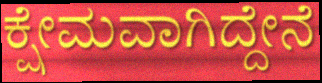
ಕ್ಷೇಮವಾಗಿದ್ದೇನೆ